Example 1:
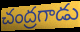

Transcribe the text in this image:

చంద్రగాడు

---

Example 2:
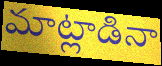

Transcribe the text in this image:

మాట్లాడినా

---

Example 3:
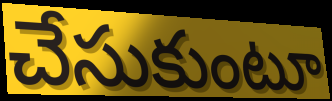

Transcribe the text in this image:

చేసుకుంటూ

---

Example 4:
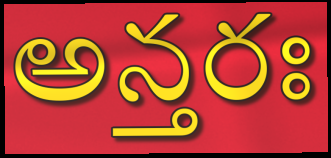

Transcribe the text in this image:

అన్తరః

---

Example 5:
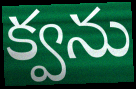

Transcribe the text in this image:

క్వను